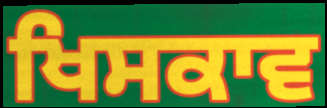
ਖਿਸਕਾਵ